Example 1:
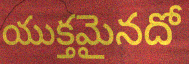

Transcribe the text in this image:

యుక్తమైనదో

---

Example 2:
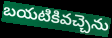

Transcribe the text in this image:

బయటికివచ్చెను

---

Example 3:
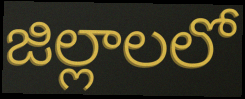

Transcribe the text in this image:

జిల్లాలలో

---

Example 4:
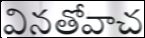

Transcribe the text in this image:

వినతోవాచ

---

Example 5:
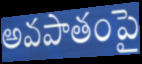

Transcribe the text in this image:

అవపాతంపై